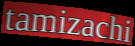
tamizachi